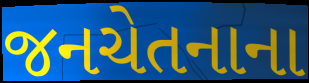
જનચેતનાના